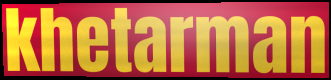
khetarman